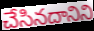
చేసినదానిని